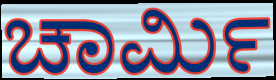
ಚಾರ್ಮಿ